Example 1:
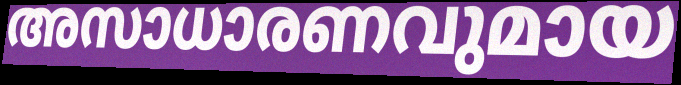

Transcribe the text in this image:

അസാധാരണവുമായ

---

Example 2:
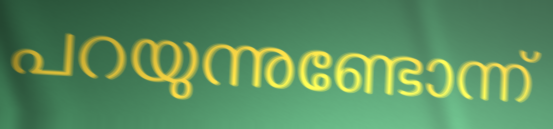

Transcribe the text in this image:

പറയുന്നുണ്ടോന്ന്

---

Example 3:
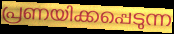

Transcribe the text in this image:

പ്രണയിക്കപ്പെടുന്ന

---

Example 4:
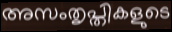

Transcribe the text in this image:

അസംതൃപ്തികളുടെ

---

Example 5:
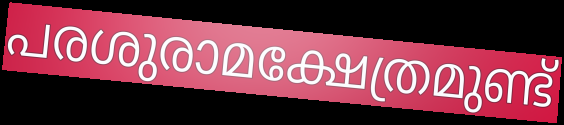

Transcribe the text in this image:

പരശുരാമക്ഷേത്രമുണ്ട്